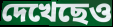
দেখেছেও